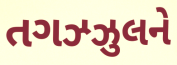
તગઝ્ઝુલને